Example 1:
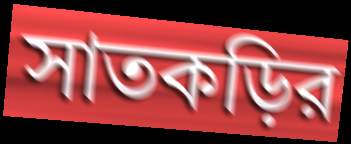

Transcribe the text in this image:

সাতকড়ির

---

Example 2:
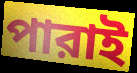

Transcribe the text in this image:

পারাই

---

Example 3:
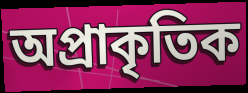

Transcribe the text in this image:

অপ্রাকৃতিক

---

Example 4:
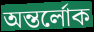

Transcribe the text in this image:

অন্তর্লোক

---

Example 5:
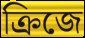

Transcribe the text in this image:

ক্রিজে